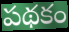
పథకం